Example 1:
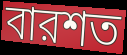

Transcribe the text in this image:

বারশত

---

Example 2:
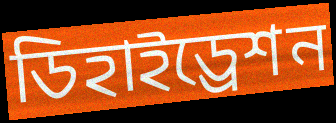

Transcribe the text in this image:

ডিহাইড্রেশন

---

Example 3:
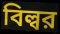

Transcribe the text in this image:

বিল্বর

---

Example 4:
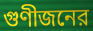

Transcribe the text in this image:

গুণীজনের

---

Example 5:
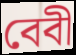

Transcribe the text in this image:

বেবী